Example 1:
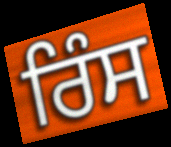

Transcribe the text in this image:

ਰਿੰਸ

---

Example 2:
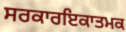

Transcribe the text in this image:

ਸਰਕਾਰਇਕਾਤਮਕ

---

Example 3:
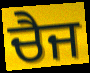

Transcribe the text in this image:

ਚੈਜ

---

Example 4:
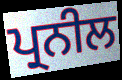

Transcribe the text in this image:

ਪ੍ਰਨੀਲ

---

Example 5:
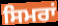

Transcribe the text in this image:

ਸਿਮਰਾਂ